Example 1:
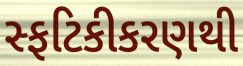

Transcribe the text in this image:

સ્ફટિકીકરણથી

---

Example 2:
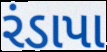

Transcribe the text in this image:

રંડાપા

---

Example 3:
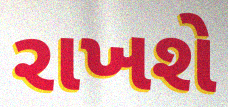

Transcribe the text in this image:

રાખશે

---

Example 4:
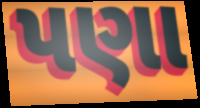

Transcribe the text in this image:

પણા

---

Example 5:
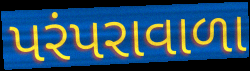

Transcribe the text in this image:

પરંપરાવાળા